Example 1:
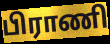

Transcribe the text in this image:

பிராணி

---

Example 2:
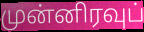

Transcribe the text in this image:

முன்னிரவுப்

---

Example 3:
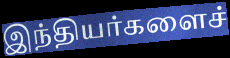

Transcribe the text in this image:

இந்தியர்களைச்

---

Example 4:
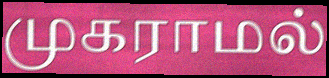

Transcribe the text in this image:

முகராமல்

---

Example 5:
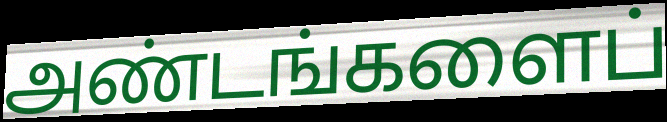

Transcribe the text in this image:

அண்டங்களைப்